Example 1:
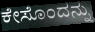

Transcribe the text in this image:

ಕೇಸೊಂದನ್ನು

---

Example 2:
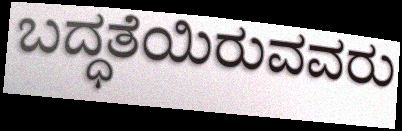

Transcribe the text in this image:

ಬದ್ಧತೆಯಿರುವವರು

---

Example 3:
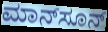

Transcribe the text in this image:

ಮಾನ್‌ಸೂನ್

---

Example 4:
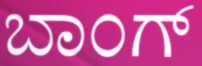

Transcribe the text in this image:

ಬಾಂಗ್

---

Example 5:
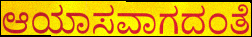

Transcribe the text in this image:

ಆಯಾಸವಾಗದಂತೆ